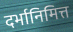
दर्भानिमित्त